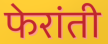
फेरांती